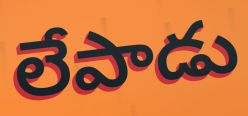
లేపాడు